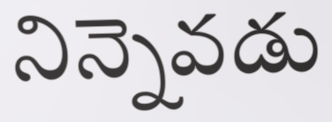
నిన్నెవడు